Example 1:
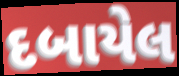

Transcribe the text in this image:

દબાયેલ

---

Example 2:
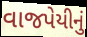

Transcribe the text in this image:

વાજપેયીનું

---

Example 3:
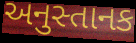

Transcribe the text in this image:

અનુસ્તાનક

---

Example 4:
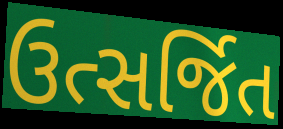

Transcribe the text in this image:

ઉત્સર્જિત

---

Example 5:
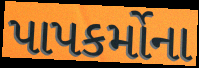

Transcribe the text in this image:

પાપકર્મોના